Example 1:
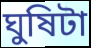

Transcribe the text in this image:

ঘুষিটা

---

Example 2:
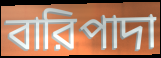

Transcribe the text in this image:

বারিপাদা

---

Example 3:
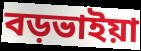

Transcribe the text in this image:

বড়ভাইয়া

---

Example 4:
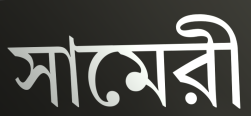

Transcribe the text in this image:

সামেরী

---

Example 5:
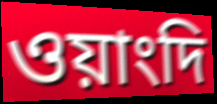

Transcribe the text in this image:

ওয়াংদি